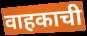
वाहकाची